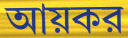
আয়কর